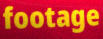
footage